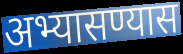
अभ्यासण्यास